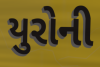
યુરોની